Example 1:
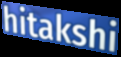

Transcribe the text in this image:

hitakshi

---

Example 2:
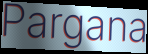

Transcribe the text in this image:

Pargana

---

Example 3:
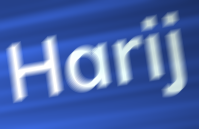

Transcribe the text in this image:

Harij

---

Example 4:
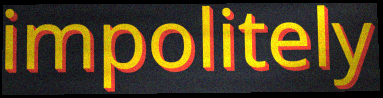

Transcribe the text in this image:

impolitely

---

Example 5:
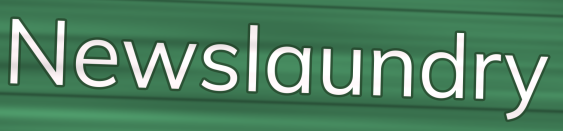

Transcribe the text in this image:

Newslaundry